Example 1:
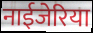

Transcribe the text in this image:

नाईजेरिया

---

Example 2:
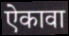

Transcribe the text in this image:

ऐकावा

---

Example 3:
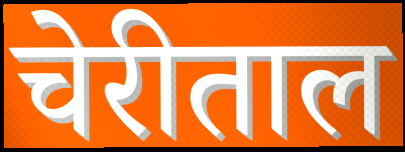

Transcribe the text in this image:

चेरीताल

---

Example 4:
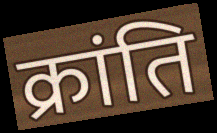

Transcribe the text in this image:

क्रांति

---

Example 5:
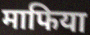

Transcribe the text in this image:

माफिया